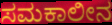
ಸಮಕಾಲೀನ